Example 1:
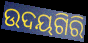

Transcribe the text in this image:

ଉଦୟଗିରି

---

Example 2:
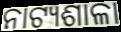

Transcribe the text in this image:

ନାଟ୍ୟଶାଳା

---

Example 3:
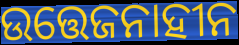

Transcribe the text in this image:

ଉତ୍ତେଜନାହୀନ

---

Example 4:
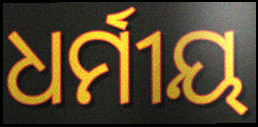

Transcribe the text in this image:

ଧର୍ମୀୟ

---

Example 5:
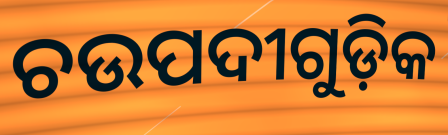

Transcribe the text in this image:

ଚଉପଦୀଗୁଡ଼ିକ